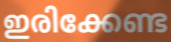
ഇരിക്കേണ്ട